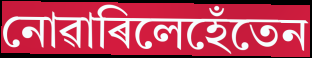
নোৱাৰিলেহেঁতেন